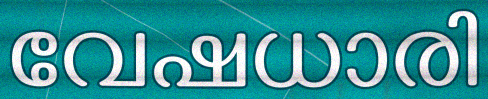
വേഷധാരി